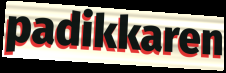
padikkaren